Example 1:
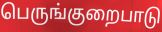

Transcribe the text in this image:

பெருங்குறைபாடு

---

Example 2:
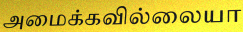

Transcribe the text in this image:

அமைக்கவில்லையா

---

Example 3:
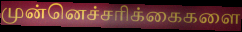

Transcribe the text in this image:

முன்னெச்சரிக்கைகளை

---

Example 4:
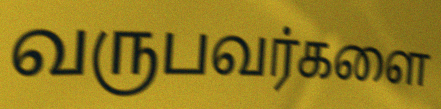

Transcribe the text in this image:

வருபவர்களை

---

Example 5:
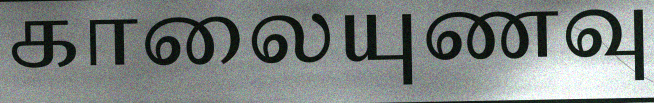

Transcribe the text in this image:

காலையுணவு